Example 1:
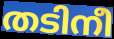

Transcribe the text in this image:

തടിനീ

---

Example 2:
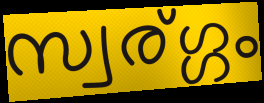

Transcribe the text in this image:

സ്വര്ഗ്ഗം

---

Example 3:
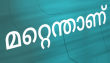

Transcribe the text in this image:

മറ്റെന്താണ്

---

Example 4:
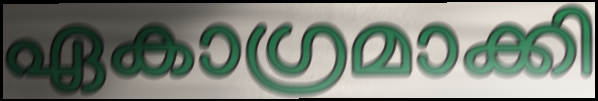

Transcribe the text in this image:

ഏകാഗ്രമാക്കി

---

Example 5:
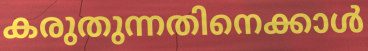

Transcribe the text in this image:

കരുതുന്നതിനെക്കാൾ